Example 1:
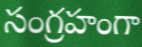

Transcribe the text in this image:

సంగ్రహంగా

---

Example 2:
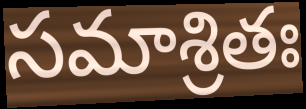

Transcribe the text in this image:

సమాశ్రితః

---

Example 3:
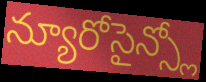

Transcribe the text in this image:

న్యూరోసైన్స్లో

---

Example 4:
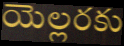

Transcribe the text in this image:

యెల్లరకు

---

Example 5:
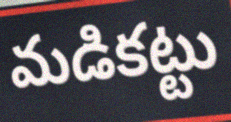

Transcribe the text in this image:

మడికట్టు